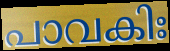
പാവകിഃ